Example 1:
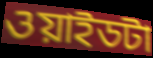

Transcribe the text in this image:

ওয়াইডটা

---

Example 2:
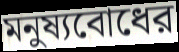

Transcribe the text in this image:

মনুষ্যবোধের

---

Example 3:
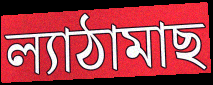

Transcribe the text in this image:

ল্যাঠামাছ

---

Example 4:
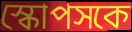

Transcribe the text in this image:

স্কোপসকে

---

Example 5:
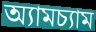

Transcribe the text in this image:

অ্যামচ্যাম